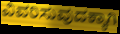
ವಿವರಿಸುವುದಕ್ಕಾಗಿ